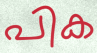
പിക